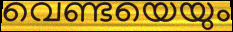
വെണ്ടയെയും